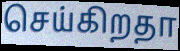
செய்கிறதா